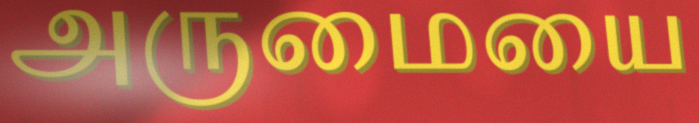
அருமையை